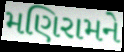
મણિરામને